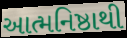
આત્મનિષ્ઠાથી